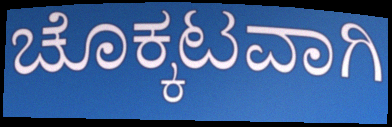
ಚೊಕ್ಕಟವಾಗಿ